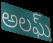
అలఘ్